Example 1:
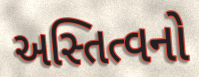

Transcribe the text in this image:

અસ્તિત્વનો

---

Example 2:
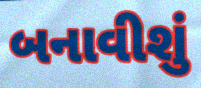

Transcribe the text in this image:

બનાવીશું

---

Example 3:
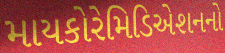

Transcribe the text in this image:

માયકોરેમિડિએશનનો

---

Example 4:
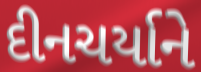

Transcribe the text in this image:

દીનચર્યાને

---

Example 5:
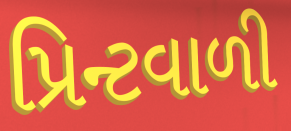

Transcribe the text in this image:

પ્રિન્ટવાળી